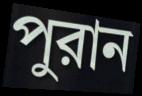
পুরান